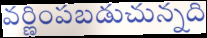
వర్ణింపబడుచున్నది